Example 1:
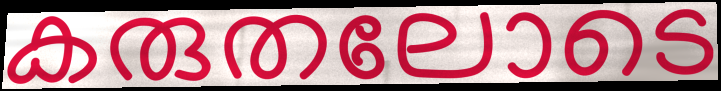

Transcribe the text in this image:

കരുതലോടെ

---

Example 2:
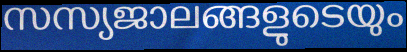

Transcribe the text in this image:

സസ്യജാലങ്ങളുടെയും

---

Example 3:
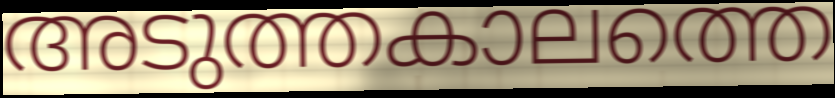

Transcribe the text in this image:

അടുത്തകാലത്തെ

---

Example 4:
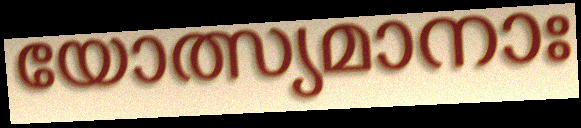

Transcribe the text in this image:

യോത്സ്യമാനാഃ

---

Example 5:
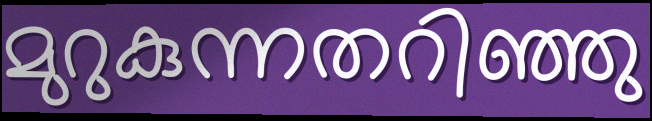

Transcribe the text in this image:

മുറുകുന്നതറിഞ്ഞു